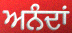
ਅਨੰਦਾਂ